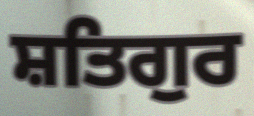
ਸ਼ਤਿਗੁਰ